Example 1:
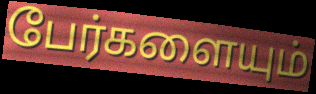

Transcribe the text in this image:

பேர்களையும்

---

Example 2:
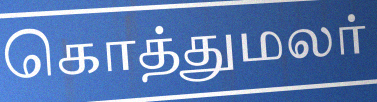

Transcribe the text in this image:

கொத்துமலர்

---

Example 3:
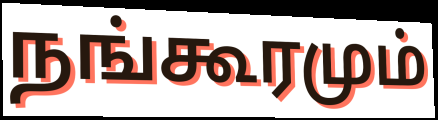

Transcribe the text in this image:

நங்கூரமும்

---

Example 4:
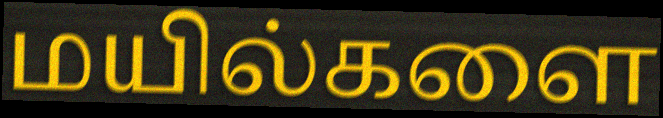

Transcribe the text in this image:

மயில்களை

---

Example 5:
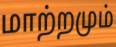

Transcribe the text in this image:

மாற்றமும்